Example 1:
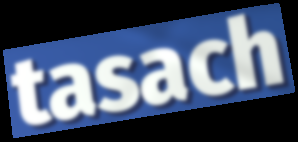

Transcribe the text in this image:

tasach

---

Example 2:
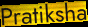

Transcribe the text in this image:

Pratiksha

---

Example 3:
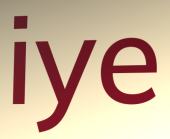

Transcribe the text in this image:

iye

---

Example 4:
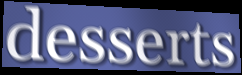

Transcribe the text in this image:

desserts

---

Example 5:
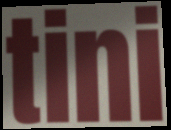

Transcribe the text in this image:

tini